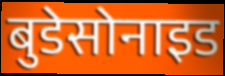
बुडेसोनाइड